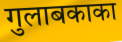
गुलाबकाका